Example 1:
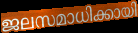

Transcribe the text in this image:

ജലസമാധിക്കായി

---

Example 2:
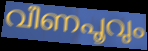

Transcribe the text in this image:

വീണപൂവും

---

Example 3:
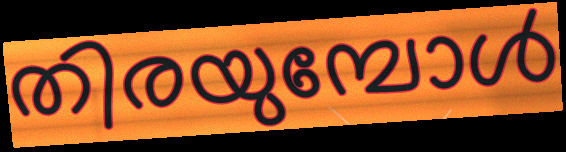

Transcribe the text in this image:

തിരയുമ്പോൾ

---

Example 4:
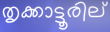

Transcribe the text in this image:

തൃക്കാട്ടൂരില്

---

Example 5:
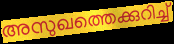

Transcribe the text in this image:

അസുഖത്തെക്കുറിച്ച്